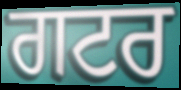
ਗਟਰ